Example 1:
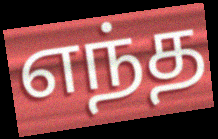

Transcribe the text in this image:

எந்த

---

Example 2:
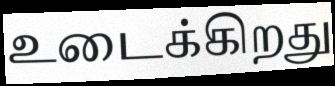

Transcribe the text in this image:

உடைக்கிறது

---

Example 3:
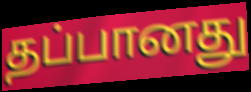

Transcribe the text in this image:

தப்பானது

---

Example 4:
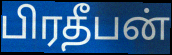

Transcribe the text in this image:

பிரதீபன்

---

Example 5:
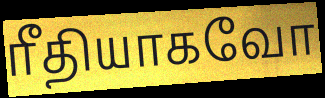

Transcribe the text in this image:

ரீதியாகவோ